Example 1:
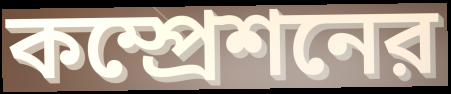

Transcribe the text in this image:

কম্প্রেশনের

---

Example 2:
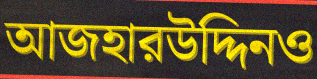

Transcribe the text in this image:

আজহারউদ্দিনও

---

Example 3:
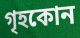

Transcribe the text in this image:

গৃহকোন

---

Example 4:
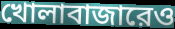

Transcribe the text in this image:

খোলাবাজারেও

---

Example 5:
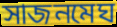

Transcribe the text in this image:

সাজনমেঘ